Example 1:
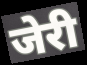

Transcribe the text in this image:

जेरी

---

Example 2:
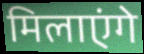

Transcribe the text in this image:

मिलाएंगे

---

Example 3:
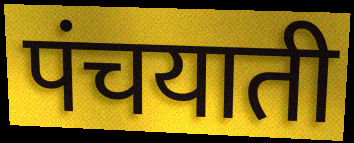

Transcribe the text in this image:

पंचयाती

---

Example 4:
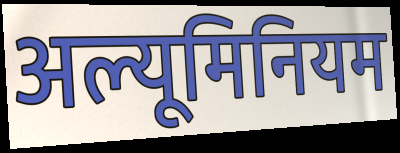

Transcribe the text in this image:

अल्यूमिनियम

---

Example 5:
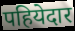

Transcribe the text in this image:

पहियेदार